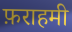
फ़राहमी